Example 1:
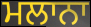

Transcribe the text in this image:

ਮਲਾਨਾ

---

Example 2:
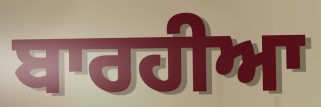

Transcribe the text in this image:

ਬਾਰਹੀਆ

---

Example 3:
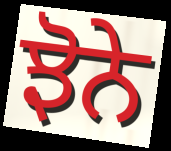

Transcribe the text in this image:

ਝੋਨੇ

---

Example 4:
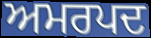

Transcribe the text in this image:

ਅਮਰਪਦ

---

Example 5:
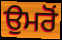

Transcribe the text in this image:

ਉਮਰੋਂ